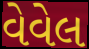
વેવેલ